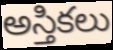
అస్తికలు